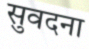
सुवदना